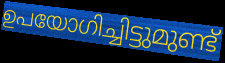
ഉപയോഗിച്ചിട്ടുമുണ്ട്